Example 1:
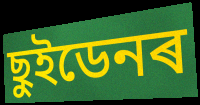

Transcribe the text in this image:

ছুইডেনৰ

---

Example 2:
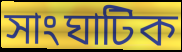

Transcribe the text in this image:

সাংঘাটিক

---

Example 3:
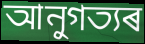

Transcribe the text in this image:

আনুগত্যৰ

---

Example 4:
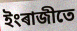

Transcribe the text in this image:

ইংৰাজীতে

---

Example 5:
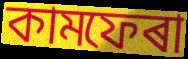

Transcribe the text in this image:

কামফেৰা